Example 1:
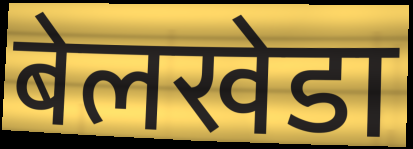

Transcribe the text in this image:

बेलखेडा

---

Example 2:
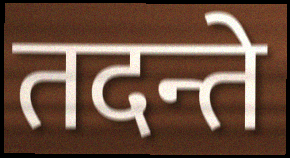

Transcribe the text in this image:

तदन्ते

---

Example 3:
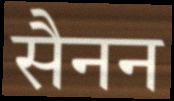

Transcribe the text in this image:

सैनन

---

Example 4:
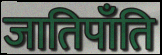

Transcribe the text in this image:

जातिपाँति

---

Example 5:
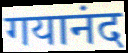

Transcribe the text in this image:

गयानंद